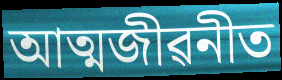
আত্মজীৱনীত